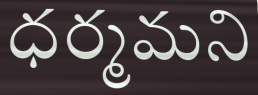
ధర్మమని